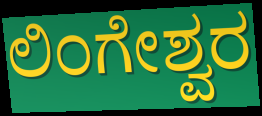
ಲಿಂಗೇಶ್ವರ